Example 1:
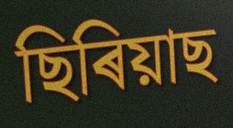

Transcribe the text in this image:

ছিৰিয়াছ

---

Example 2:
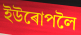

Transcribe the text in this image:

ইউৰোপলৈ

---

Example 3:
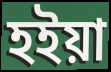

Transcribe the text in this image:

হইয়া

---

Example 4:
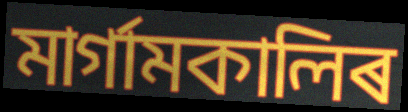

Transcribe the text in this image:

মাৰ্গামকালিৰ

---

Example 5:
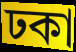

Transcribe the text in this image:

ঢকা